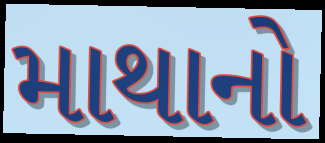
માથાનો